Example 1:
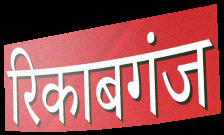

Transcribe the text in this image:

रिकाबगंज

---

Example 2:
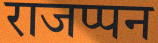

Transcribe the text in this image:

राजप्पन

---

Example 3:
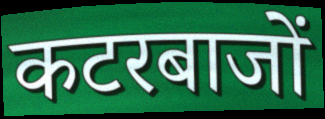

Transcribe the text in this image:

कटरबाजों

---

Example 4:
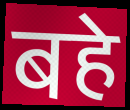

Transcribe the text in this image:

बहे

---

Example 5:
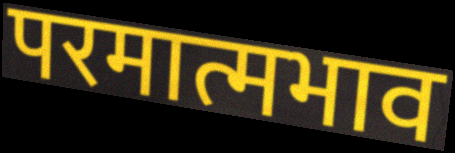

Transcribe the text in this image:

परमात्मभाव